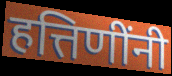
हत्तिणींनी